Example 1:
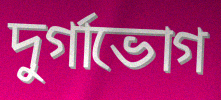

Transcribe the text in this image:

দুর্গাভোগ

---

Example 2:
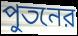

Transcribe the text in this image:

পুতনের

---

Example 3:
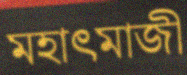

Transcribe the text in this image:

মহাৎমাজী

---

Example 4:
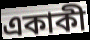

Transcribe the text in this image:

একাকী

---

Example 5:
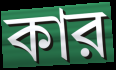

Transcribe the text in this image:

কার